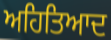
ਅਹਿਤਿਆਦ